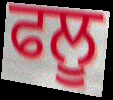
ਫਲੂ